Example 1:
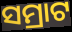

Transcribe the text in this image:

ସମ୍ରାଟ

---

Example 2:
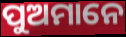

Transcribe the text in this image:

ପୁଅମାନେ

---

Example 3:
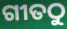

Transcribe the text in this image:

ଗୀତଠୁ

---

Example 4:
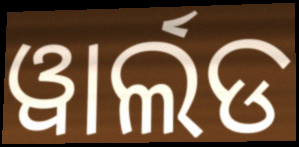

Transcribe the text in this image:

ୱାର୍ଲଡ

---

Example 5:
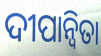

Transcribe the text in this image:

ଦୀପାନ୍ୱିତା